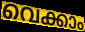
വെക്കാം